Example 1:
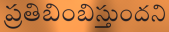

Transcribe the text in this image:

ప్రతిబింబిస్తుందని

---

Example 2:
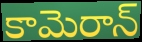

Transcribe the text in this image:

కామెరాన్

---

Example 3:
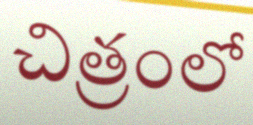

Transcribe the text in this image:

చిత్రంలో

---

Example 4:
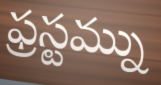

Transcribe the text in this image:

ఫ్రస్టమ్ను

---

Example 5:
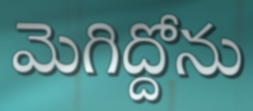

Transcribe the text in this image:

మెగిద్దోను